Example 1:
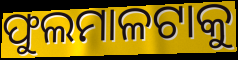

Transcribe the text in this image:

ଫୁଲମାଳଟାକୁ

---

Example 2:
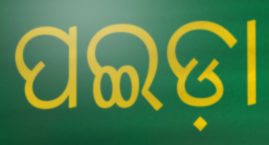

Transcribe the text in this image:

ପଇଡ଼ା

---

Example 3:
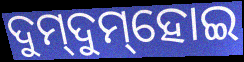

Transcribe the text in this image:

ଦୁମ୍‌ଦୁମ୍‌ହୋଇ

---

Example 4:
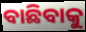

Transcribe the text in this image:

ବାଛିବାକୁ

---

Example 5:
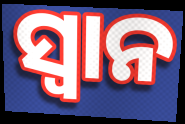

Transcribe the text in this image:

ସ୍ୱାନ